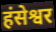
हंसेश्वर